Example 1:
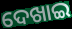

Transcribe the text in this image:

ଦେଖାଇ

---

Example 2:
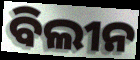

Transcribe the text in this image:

ବିଲୀନ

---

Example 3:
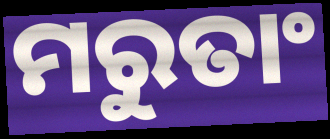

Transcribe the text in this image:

ମରୁତାଂ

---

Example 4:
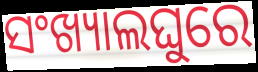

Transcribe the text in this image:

ସଂଖ୍ୟାଲଘୁରେ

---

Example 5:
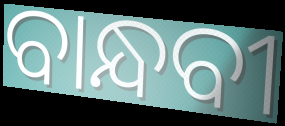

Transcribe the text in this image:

ବାନ୍ଧବୀ